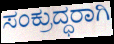
ಸಂಕ್ರುದ್ಧರಾಗಿ